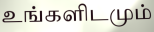
உங்களிடமும்